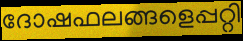
ദോഷഫലങ്ങളെപ്പറ്റി